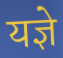
यज्ञे